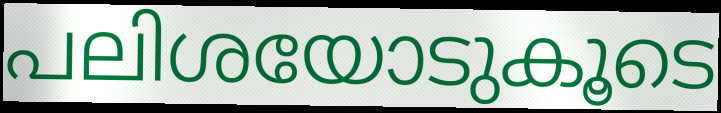
പലിശയോടുകൂടെ